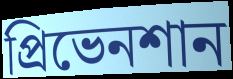
প্রিভেনশান